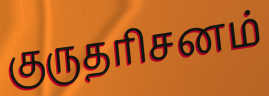
குருதரிசனம்